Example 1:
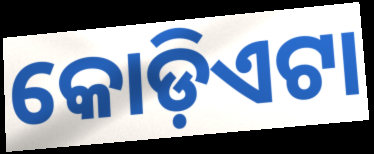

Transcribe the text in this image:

କୋଡ଼ିଏଟା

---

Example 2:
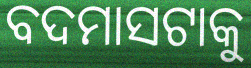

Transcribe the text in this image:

ବଦମାସଟାକୁ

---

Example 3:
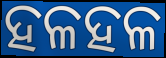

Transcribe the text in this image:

ହଳହଳ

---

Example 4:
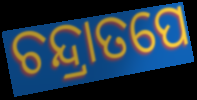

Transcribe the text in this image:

ଚନ୍ଦ୍ରାତପେ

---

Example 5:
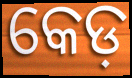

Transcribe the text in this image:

କେଡ଼